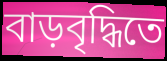
বাড়বৃদ্ধিতে